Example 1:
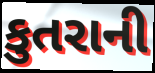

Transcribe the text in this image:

કુતરાની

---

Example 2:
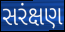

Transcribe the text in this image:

સરંક્ષણ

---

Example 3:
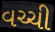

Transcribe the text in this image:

વચ્ચી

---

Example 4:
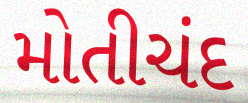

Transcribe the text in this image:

મોતીચંદ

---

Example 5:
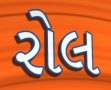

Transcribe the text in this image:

રોલ